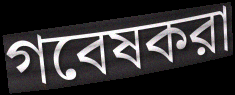
গবেষকরা